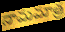
నామమాత్ర